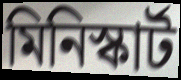
মিনিস্কার্ট